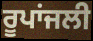
ਰੂਪਾਂਜਲੀ